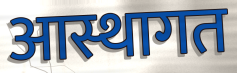
आस्थागत